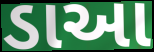
ડાઆ